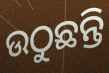
ଉଠୁଛନ୍ତି